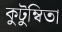
কুটুম্বিতা